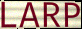
LARP